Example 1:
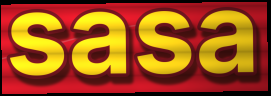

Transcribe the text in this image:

sasa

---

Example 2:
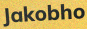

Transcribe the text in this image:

Jakobho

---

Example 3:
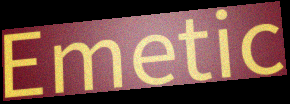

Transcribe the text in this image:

Emetic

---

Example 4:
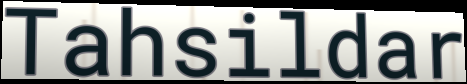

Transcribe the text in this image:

Tahsildar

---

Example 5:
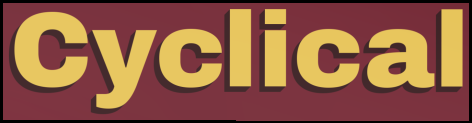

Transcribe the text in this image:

Cyclical